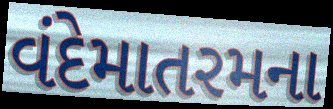
વંદેમાતરમના